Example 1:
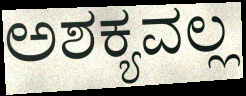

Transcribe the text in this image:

ಅಶಕ್ಯವಲ್ಲ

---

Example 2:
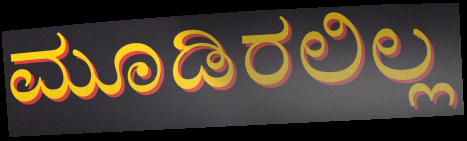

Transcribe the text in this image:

ಮೂಡಿರಲಿಲ್ಲ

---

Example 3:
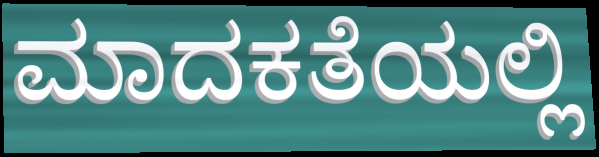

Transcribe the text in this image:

ಮಾದಕತೆಯಲ್ಲಿ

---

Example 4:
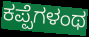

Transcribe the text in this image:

ಕಪ್ಪೆಗಳಂಥ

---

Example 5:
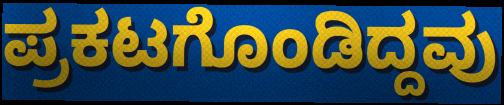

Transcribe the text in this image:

ಪ್ರಕಟಗೊಂಡಿದ್ದವು